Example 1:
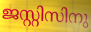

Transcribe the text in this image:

ജസ്റ്റിസിനു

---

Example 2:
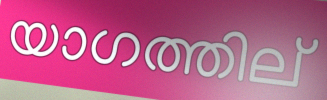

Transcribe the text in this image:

യാഗത്തില്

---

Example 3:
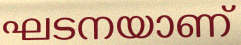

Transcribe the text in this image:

ഘടനയാണ്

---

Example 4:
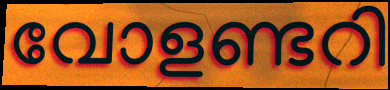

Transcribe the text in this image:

വോളണ്ടറി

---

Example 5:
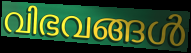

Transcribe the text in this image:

വിഭവങ്ങൾ